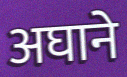
अघाने